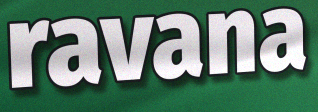
ravana